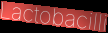
Lactobacilli